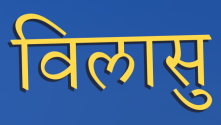
विलासु